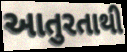
આતુરતાથી